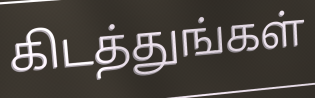
கிடத்துங்கள்